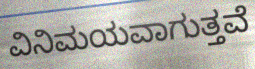
ವಿನಿಮಯವಾಗುತ್ತವೆ